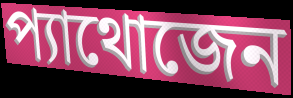
প্যাথোজেন